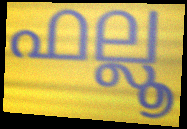
ഫല്ലൂ